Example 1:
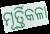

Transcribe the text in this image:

ମୂର୍ତ୍ତିକଳା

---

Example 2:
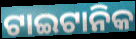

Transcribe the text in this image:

ଟାଇଟାନିକ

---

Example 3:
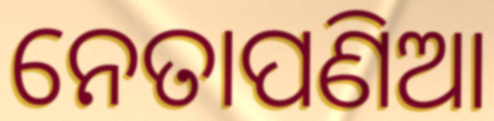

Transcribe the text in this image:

ନେତାପଣିଆ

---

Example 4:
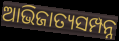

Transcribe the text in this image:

ଆଭିଜାତ୍ୟସମ୍ପନ୍ନ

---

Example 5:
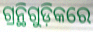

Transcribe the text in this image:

ଗ୍ରନ୍ଥିଗୁଡ଼ିକରେ